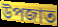
উপজাত